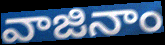
వాజినాం